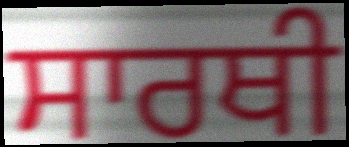
ਸਾਰਥੀ